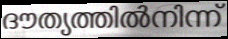
ദൗത്യത്തിൽനിന്ന്